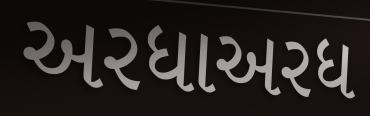
અરધાઅરધ